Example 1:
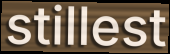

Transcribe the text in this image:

stillest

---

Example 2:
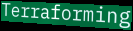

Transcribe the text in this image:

Terraforming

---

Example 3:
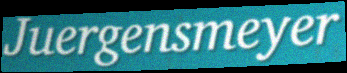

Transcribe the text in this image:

Juergensmeyer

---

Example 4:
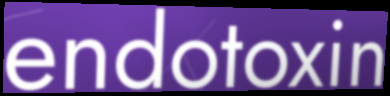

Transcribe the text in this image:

endotoxin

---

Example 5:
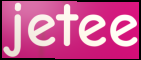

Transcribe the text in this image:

jetee